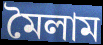
মৈলাম